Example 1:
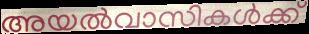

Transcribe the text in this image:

അയൽവാസികൾക്ക്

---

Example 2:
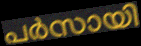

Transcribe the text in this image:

പർസായി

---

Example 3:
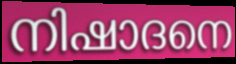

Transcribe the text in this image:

നിഷാദനെ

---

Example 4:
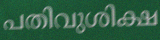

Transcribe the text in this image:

പതിവുശിക്ഷ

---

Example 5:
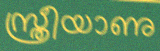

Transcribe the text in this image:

സ്ത്രീയാണു